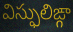
విస్ఫులిఙ్గా